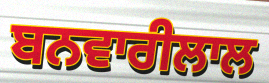
ਬਨਵਾਰੀਲਾਲ